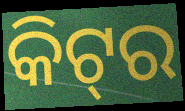
କିଟ୍‌ର